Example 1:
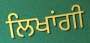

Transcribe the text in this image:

ਲਿਖਾਂਗੀ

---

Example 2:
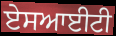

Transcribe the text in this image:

ਏਸਆਈਟੀ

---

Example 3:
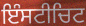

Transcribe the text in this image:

ਇੰਸਟੀਚਿਟ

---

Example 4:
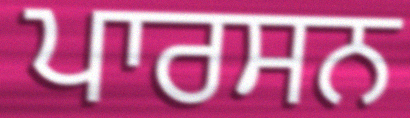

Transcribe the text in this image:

ਪਾਰਸਨ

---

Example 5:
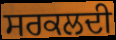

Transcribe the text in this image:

ਸਰਕਲਦੀ